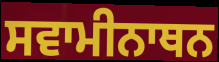
ਸਵਾਮੀਨਾਥਨ